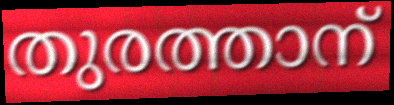
തുരത്താന്